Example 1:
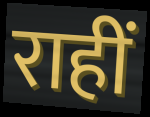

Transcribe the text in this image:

राहीं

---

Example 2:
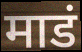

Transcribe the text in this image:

माडं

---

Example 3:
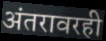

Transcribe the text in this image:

अंतरावरही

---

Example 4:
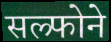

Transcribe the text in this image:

सल्फोने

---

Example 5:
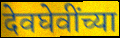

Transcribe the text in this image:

देवघेवींच्या